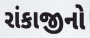
રાંકાજીનો